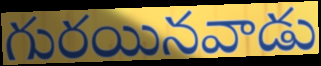
గురయినవాడు